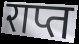
राप्त